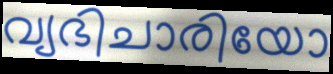
വ്യഭിചാരിയോ